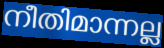
നീതിമാന്നല്ല